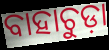
ବାହାଚୁଡ଼ା